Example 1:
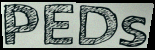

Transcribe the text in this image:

PEDs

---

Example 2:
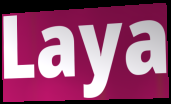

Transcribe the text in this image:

Laya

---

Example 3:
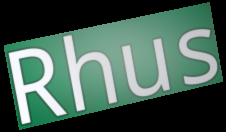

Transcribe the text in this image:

Rhus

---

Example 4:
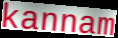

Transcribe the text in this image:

kannam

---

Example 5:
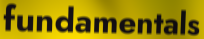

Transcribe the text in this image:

fundamentals